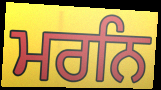
ਮਰਨਿ